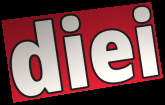
diei